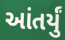
આંતર્યું